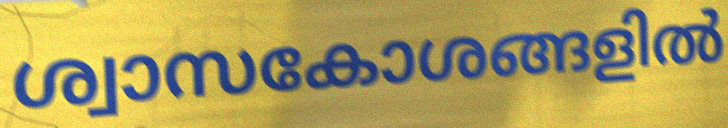
ശ്വാസകോശങ്ങളിൽ